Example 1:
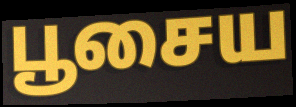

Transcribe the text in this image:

பூசைய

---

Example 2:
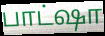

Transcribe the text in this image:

பாட்ஷா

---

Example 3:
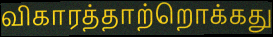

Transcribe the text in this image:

விகாரத்தாற்றொக்கது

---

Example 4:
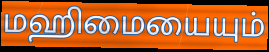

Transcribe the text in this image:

மஹிமையையும்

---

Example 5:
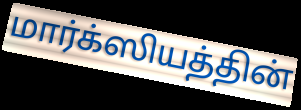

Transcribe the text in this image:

மார்க்ஸியத்தின்